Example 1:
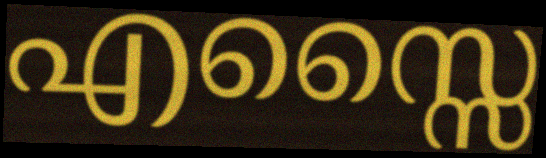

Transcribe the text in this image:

എസ്സൈ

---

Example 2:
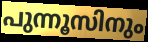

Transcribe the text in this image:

പുന്നൂസിനും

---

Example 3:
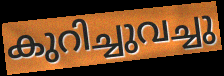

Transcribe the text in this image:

കുറിച്ചുവച്ചു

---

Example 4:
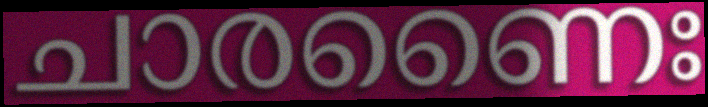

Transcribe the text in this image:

ചാരണൈഃ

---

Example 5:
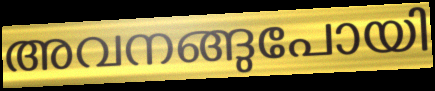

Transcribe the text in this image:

അവനങ്ങുപോയി